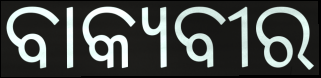
ବାକ୍ୟବୀର